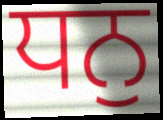
ਧਨੁ